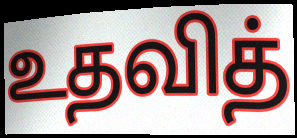
உதவித்